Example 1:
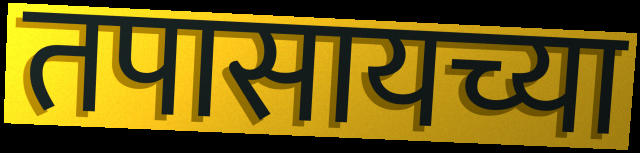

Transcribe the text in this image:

तपासायच्या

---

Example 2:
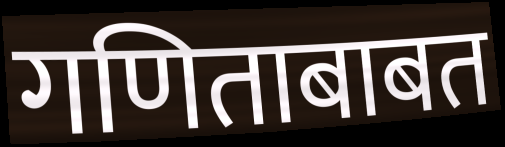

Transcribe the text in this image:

गणिताबाबत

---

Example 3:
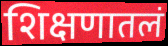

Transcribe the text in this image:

शिक्षणातलं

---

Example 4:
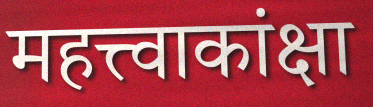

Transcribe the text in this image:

महत्त्वाकांक्षा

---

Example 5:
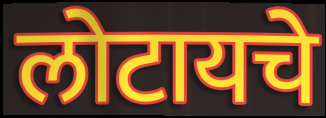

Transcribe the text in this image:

लोटायचे